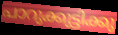
പാറുക്കുട്ടിക്കു